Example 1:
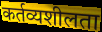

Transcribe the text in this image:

कर्तव्यशीलता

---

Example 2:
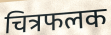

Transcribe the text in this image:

चित्रफलक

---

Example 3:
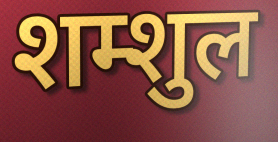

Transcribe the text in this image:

शम्शुल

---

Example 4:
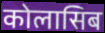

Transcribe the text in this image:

कोलासिब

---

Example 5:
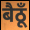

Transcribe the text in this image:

बैठूँ